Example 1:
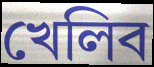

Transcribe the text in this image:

খেলিব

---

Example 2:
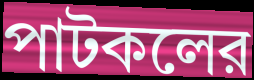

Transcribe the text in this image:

পাটকলের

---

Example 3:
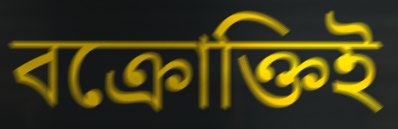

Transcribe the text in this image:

বক্রোক্তিই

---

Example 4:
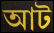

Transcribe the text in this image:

আট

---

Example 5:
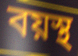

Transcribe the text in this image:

বয়স্থ